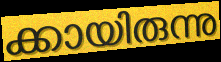
ക്കായിരുന്നു